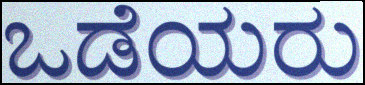
ಒಡೆಯರು